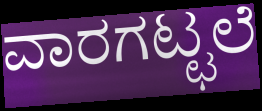
ವಾರಗಟ್ಟಲೆ